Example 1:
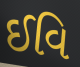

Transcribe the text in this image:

ઈવિ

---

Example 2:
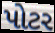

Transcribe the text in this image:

પોટર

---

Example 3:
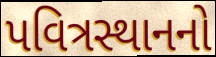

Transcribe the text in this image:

પવિત્રસ્થાનનો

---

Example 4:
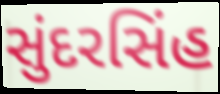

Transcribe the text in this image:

સુંદરસિંહ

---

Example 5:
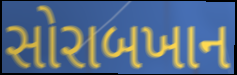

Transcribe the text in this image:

સોરાબખાન